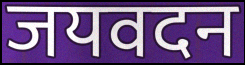
जयवदन